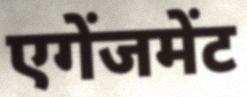
एगेंजमेंट